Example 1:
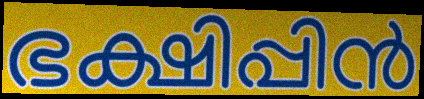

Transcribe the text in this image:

ഭക്ഷിപ്പിൻ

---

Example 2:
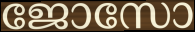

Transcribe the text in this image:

ജോസോ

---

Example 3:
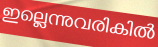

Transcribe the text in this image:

ഇല്ലെന്നുവരികിൽ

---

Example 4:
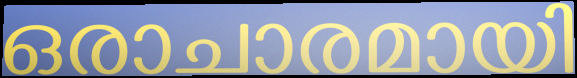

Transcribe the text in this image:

ഒരാചാരമായി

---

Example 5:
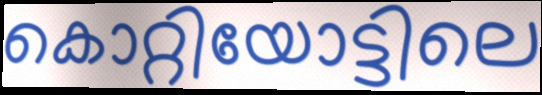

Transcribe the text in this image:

കൊറ്റിയോട്ടിലെ